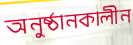
অনুষ্ঠানকালীন